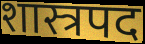
शास्त्रपद